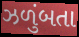
ઝળુંબતા